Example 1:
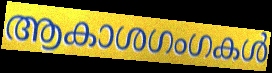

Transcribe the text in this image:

ആകാശഗംഗകൾ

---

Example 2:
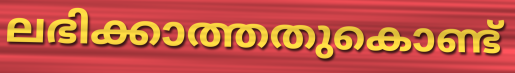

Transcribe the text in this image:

ലഭിക്കാത്തതുകൊണ്ട്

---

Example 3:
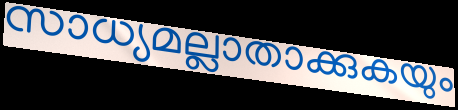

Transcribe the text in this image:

സാധ്യമല്ലാതാക്കുകയും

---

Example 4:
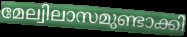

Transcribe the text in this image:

മേല്വിലാസമുണ്ടാക്കി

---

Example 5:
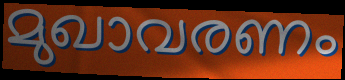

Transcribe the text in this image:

മുഖാവരണം